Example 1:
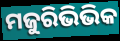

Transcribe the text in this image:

ମଜୁରିଭିଭିକ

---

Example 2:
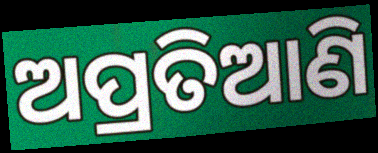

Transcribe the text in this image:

ଅପ୍ରତିଆଣି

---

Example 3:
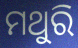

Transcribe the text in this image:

ମଥୁରି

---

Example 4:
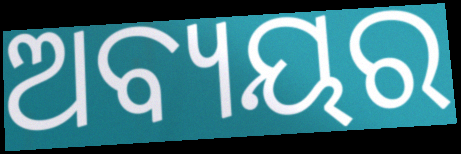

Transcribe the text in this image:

ଅବ୍ୟୟର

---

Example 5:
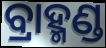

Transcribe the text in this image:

ବ୍ରାହ୍ମଣ୍ଡ